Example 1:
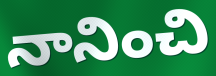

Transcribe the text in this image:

నానించి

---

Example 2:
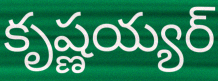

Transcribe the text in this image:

కృష్ణయ్యర్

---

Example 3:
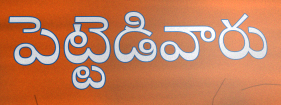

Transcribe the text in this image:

పెట్టెడివారు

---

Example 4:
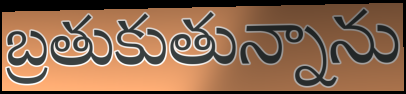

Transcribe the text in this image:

బ్రతుకుతున్నాను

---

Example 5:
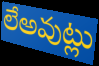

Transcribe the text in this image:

లేఅవుట్లు